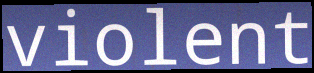
violent